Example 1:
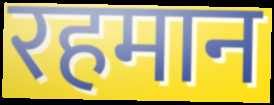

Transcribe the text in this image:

रहमान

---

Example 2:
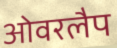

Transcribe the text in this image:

ओवरलैप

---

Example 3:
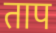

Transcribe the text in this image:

ताप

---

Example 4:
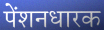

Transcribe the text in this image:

पेंशनधारक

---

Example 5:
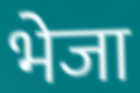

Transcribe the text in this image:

भेजा